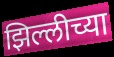
झिल्लीच्या